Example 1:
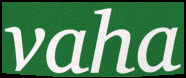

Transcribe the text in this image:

vaha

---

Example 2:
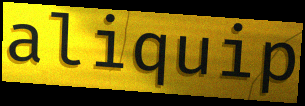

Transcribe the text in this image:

aliquip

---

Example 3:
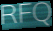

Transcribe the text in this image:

RFQ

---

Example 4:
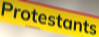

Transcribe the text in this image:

Protestants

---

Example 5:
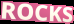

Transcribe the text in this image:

ROCKS